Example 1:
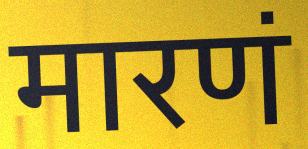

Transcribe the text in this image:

मारणं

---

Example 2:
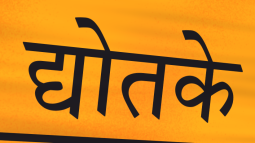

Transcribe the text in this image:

द्योतके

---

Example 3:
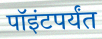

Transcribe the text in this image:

पॉइंटपर्यंत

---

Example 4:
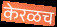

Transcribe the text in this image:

केरळच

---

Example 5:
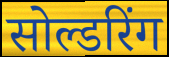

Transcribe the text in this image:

सोल्डरिंग